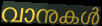
വാനുകൾ